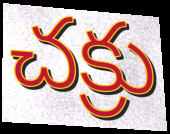
చక్రు